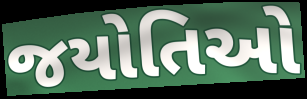
જયોતિઓ